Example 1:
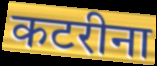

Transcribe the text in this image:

कटरीना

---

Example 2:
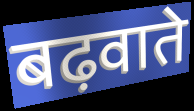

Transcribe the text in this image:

बढ़वाते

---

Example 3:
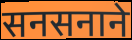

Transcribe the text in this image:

सनसनाने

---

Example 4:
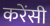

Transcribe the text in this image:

करेंसी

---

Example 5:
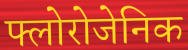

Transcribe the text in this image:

फ्लोरोजेनिक